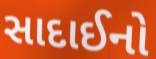
સાદાઈનો